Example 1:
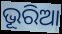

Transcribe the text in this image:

ଭୂରିଆ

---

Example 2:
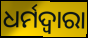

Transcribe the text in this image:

ଧର୍ମଦ୍ୱାରା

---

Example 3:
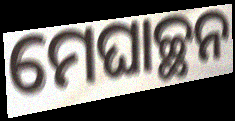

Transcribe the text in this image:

ମେଘାଚ୍ଛନ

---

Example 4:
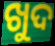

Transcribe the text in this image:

ଖୁଦ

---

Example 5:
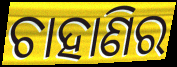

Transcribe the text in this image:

ଚାହାଣିର